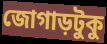
জোগাড়টুকু